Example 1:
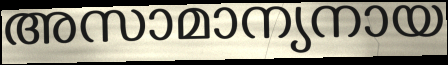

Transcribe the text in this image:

അസാമാന്യനായ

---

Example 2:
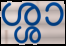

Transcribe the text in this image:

ശ്ശാ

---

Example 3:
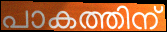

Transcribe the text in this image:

പാകത്തിന്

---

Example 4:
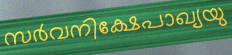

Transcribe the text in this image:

സർവനിക്ഷേപാഖ്യയു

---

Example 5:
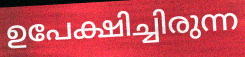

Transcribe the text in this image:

ഉപേക്ഷിച്ചിരുന്ന